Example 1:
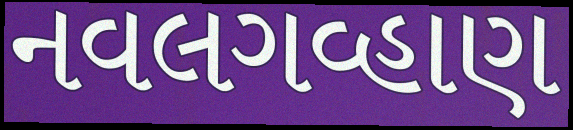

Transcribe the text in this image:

નવલગવ્હાણ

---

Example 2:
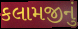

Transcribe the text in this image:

કલામજીનું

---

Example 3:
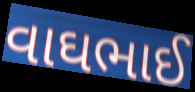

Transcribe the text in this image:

વાઘભાઈ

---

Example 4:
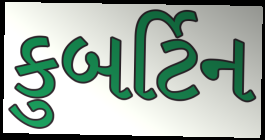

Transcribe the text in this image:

કુબર્ટિન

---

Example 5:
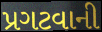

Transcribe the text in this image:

પ્રગટવાની